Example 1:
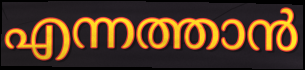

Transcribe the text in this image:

എന്നത്താൻ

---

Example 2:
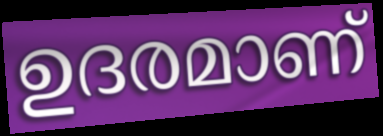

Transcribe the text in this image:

ഉദരമാണ്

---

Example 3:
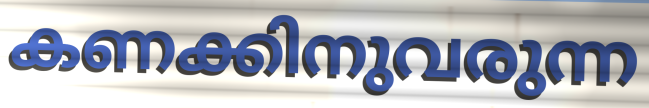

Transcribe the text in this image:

കണക്കിനുവരുന്ന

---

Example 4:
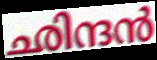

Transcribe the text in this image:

ഛിന്ദൻ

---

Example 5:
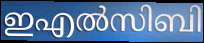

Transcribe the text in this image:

ഇഎൽസിബി